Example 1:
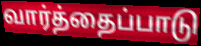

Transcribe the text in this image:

வார்த்தைப்பாடு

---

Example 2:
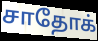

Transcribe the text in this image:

சாதோக்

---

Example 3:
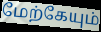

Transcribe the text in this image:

மேற்கேயும்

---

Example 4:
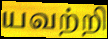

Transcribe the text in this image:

யவற்றி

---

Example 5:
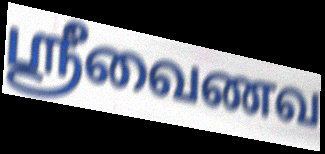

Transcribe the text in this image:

ஸ்ரீவைணவ